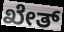
ಖೇತ್